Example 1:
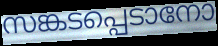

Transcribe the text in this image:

സങ്കടപ്പെടാനോ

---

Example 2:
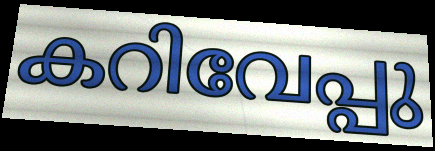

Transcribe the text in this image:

കറിവേപ്പു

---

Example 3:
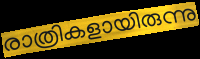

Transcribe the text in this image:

രാത്രികളായിരുന്നു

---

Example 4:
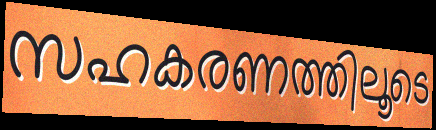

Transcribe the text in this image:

സഹകരണത്തിലൂടെ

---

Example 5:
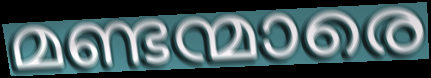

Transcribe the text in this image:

മണ്ടന്മാരെ